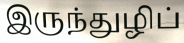
இருந்துழிப்